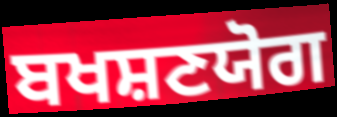
ਬਖਸ਼ਣਯੋਗ